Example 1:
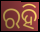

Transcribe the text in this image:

ରହି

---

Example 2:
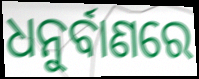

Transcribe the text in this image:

ଧନୁର୍ବାଣରେ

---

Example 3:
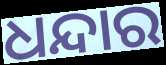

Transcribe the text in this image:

ଧନ୍ଦାର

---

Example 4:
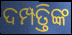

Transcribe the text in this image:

ଦମ୍ପତ୍ତିଙ୍କ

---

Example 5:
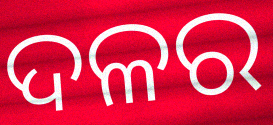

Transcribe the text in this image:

ଦଳର